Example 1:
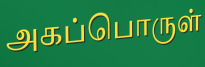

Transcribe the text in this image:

அகப்பொருள்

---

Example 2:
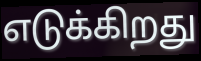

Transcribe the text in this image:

எடுக்கிறது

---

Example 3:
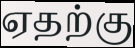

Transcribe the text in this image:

ஏதற்கு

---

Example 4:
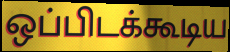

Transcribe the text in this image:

ஒப்பிடக்கூடிய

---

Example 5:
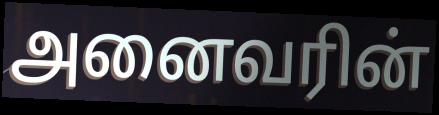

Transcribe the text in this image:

அனைவரின்